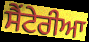
ਸੈਂਟੇਰੀਆ